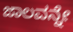
ಜಾಲವನ್ನೇ